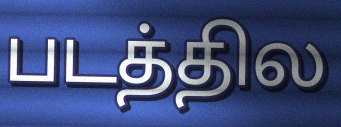
படத்தில